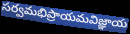
సర్వమభిప్రాయమవిజ్ఞాయ